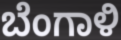
ಬೆಂಗಾಳಿ